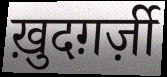
ख़ुदग़र्ज़ी